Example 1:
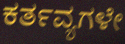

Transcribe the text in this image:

ಕರ್ತವ್ಯಗಳೇ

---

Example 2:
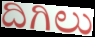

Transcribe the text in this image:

ದಿಗಿಲು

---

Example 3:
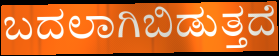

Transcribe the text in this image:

ಬದಲಾಗಿಬಿಡುತ್ತದೆ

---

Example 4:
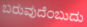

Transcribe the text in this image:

ಬರುವುದೆಂಬುದು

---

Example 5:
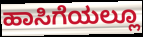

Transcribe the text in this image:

ಹಾಸಿಗೆಯಲ್ಲೂ